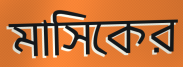
মাসিকের